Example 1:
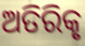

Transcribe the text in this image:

ଅତିରିକୃ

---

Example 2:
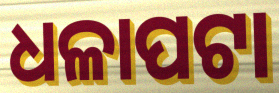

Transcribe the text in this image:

ଧଳାପଟା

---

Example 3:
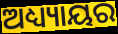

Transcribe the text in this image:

ଅଧ୍ୟ୍ୟାୟର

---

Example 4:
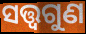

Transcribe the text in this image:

ସତ୍ତ୍ୱଗୁଣ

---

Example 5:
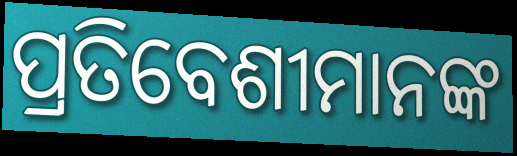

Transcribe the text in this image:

ପ୍ରତିବେଶୀମାନଙ୍କ